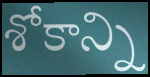
శోకాన్ని